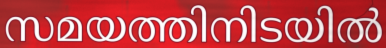
സമയത്തിനിടയിൽ